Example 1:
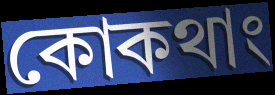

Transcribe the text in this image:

কোকথাং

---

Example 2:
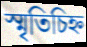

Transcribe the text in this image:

স্মৃতিচিহ্ন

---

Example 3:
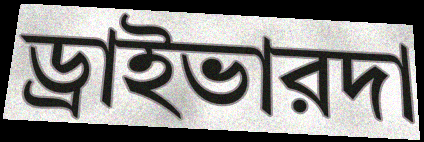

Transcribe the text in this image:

ড্রাইভারদা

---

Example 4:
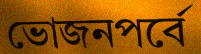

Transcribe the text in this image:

ভোজনপর্বে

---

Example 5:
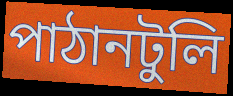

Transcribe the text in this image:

পাঠানটুলি